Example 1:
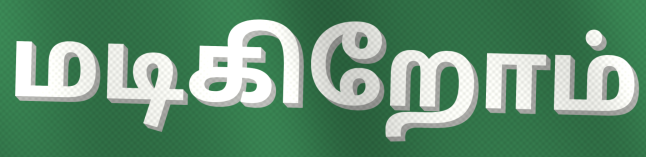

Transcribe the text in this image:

மடிகிறோம்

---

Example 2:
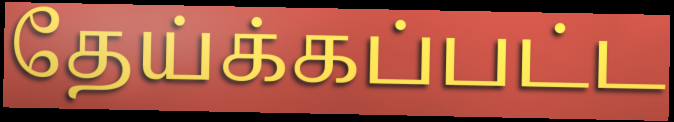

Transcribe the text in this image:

தேய்க்கப்பட்ட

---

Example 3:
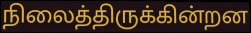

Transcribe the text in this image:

நிலைத்திருக்கின்றன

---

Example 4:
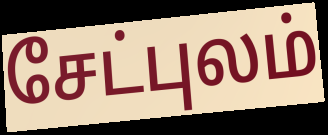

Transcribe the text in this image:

சேட்புலம்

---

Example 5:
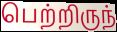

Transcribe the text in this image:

பெற்றிருந்